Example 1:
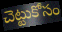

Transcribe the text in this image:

చెట్టుకోసం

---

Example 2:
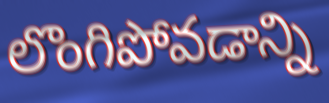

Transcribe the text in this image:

లొంగిపోవడాన్ని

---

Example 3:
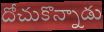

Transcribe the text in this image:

దోచుకొన్నాడు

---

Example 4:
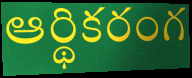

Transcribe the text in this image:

ఆర్థికరంగ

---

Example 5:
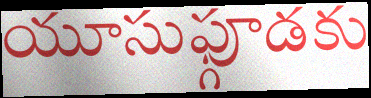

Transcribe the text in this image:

యూసుఫ్గూడకు